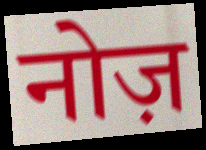
नोज़